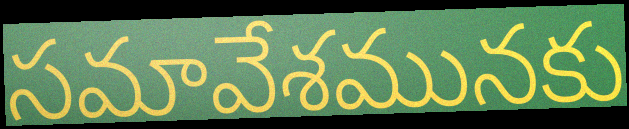
సమావేశమునకు